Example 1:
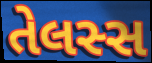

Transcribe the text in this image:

તેલસ્સ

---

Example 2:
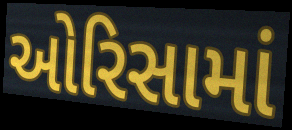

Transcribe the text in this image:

ઓરિસામાં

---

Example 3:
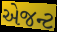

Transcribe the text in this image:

એજન્ટ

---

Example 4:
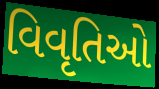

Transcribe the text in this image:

વિવૃતિઓ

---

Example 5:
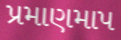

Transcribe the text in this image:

પ્રમાણમાપ